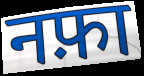
नफ़ा